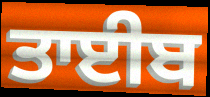
ਤਾਈਬ